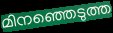
മിനഞ്ഞെടുത്ത